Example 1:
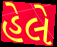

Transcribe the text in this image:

હેલે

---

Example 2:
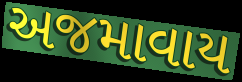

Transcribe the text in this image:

અજમાવાય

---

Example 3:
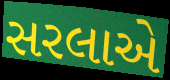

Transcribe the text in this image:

સરલાએ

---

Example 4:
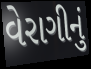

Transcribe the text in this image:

વેરાગીનું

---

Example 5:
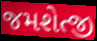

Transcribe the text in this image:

જમશેત્જી